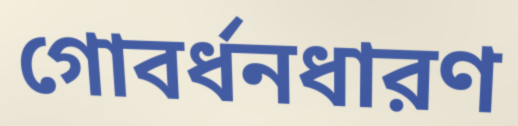
গোবর্ধনধারণ